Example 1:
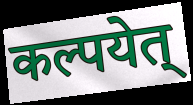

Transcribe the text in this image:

कल्पयेत्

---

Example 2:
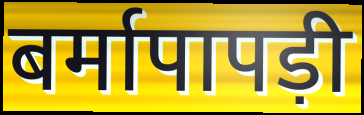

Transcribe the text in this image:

बर्मापापड़ी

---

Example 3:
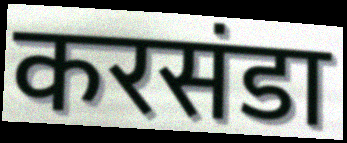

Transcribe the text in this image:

करसंडा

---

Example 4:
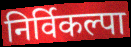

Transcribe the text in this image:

निर्विकल्पा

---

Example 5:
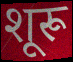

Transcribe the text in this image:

शूरू